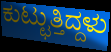
ಕುಟ್ಟುತ್ತಿದ್ದಳು